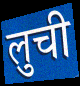
लुची